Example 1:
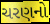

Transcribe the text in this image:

ચરણનો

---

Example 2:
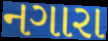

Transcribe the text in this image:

નગારા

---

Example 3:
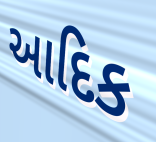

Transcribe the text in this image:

આદિક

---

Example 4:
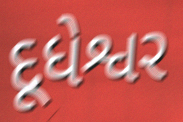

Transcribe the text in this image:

દૂધેશ્વર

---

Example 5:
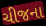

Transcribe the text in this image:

ચીજના